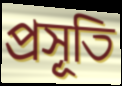
প্ৰসূতি